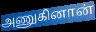
அணுகினான்